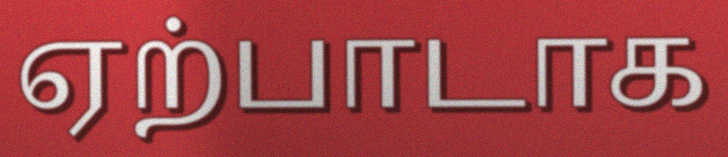
ஏற்பாடாக